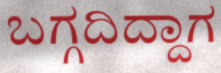
ಬಗ್ಗದಿದ್ದಾಗ